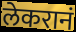
लेकरानं